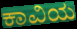
ಕಾವಿಯ